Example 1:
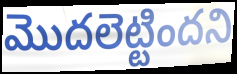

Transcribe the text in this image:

మొదలెట్టిందని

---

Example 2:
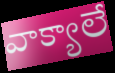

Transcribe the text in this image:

వాక్యాలే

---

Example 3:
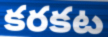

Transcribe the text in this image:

కరకట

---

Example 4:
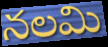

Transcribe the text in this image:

నలమి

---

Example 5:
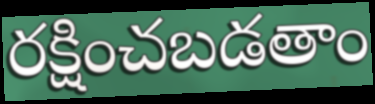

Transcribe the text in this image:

రక్షించబడతాం